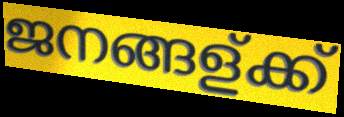
ജനങ്ങള്ക്ക്